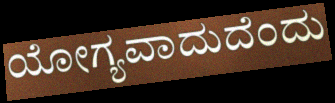
ಯೋಗ್ಯವಾದುದೆಂದು